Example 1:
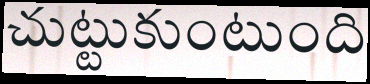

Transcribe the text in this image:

చుట్టుకుంటుంది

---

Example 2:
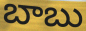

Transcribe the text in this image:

బాబు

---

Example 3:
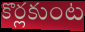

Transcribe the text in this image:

కొర్లకుంట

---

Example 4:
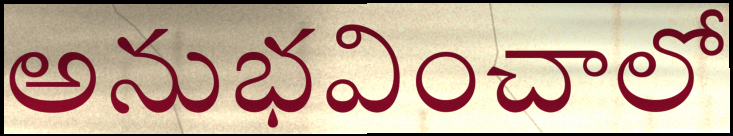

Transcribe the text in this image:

అనుభవించాలో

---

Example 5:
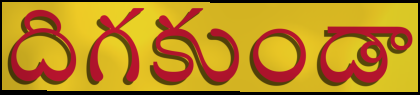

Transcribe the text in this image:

దిగకుండా